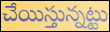
చేయిస్తున్నట్టు